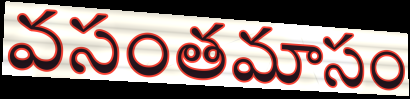
వసంతమాసం